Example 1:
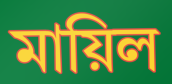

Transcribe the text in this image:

মায়িল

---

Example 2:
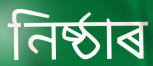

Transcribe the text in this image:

নিষ্ঠাৰ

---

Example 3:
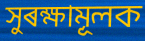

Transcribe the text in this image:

সুৰক্ষামূলক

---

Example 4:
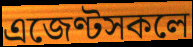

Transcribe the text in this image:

এজেণ্টসকলে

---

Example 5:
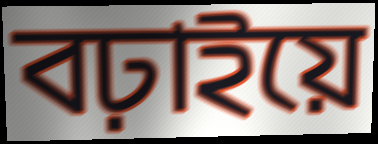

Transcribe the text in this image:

বঢ়াইয়ে